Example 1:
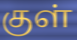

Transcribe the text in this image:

குள்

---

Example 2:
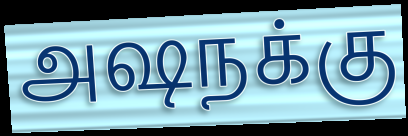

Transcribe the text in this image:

அஷநக்கு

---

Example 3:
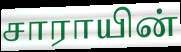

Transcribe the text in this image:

சாராயின்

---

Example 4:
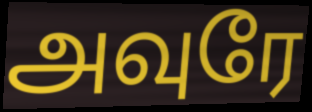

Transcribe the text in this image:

அவுரே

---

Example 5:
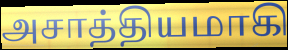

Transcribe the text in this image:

அசாத்தியமாகி